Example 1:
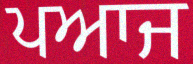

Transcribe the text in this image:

ਪਆਜ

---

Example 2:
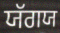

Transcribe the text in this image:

ਯੱਗਯ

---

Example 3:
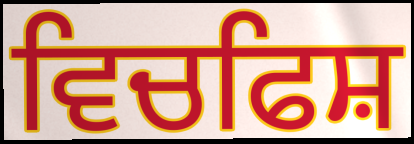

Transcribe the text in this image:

ਵਿਚਫਿਸ਼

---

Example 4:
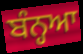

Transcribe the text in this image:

ਬੰਨ੍ਹਆ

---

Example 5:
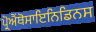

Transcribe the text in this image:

ਪ੍ਰੋਐਂਥੋਸਾਇਨਿਡਿਨਸ